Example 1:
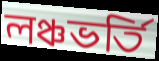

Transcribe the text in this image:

লঞ্চভর্তি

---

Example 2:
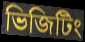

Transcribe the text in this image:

ভিজিটিং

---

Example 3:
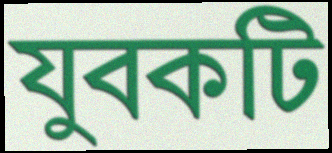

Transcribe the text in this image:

যুবকটি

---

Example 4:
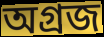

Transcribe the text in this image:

অগ্রজ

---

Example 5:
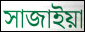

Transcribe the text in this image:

সাজাইয়া